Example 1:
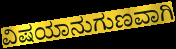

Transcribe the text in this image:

ವಿಷಯಾನುಗುಣವಾಗಿ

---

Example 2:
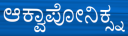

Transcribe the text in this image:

ಆಕ್ವಾಪೋನಿಕ್ಸ್ನ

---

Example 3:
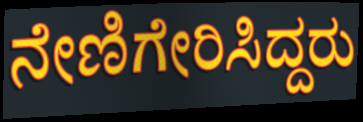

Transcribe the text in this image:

ನೇಣಿಗೇರಿಸಿದ್ದರು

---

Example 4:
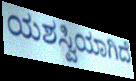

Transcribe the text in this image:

ಯಶಸ್ವಿಯಾಗಿದೆ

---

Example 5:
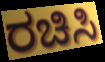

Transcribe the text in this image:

ರಚಿಸಿ